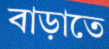
বাড়াতে